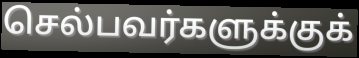
செல்பவர்களுக்குக்